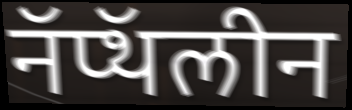
नॅप्थॅलीन